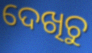
ଦେଖିଚୁ